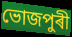
ভোজপুৰী